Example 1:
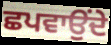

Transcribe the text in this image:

ਛਪਵਾਉਂਦੇ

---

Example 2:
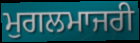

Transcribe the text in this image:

ਮੁਗਲਮਾਜਰੀ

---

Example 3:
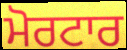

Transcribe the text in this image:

ਮੋਰਟਾਰ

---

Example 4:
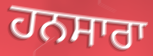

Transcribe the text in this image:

ਹਨਸਾਰਾ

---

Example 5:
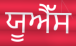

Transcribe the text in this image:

ਯੂਐੱਸ